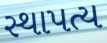
સ્થાપત્ય